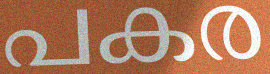
പകര